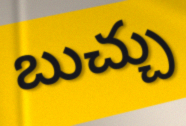
బుచ్చు